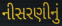
નીસરણીનું